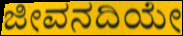
ಜೀವನದಿಯೇ